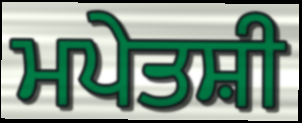
ਮਪੇਤਸ਼ੀ